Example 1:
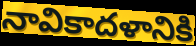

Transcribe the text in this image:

నావికాదళానికి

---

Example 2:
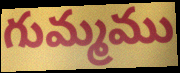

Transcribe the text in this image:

గుమ్మము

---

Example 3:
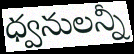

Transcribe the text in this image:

ధ్వనులన్నీ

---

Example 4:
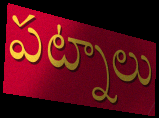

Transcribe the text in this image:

పట్నాలు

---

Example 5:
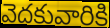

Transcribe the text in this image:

వెదకువారికి